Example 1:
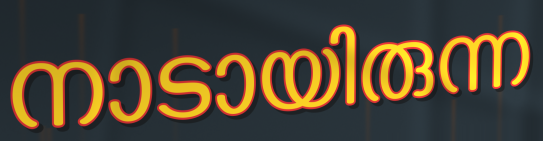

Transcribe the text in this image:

നാടായിരുന്ന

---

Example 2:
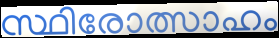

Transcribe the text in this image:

സ്ഥിരോത്സാഹം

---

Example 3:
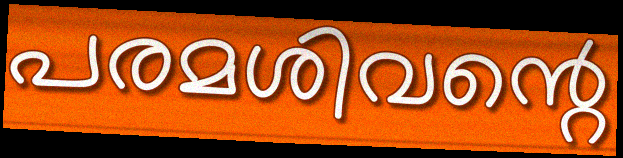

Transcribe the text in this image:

പരമശിവന്റെ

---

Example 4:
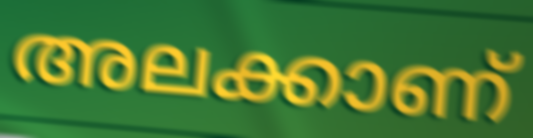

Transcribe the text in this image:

അലക്കാണ്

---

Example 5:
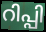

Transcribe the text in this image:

റിപ്പി